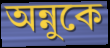
অন্নুকে